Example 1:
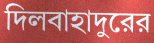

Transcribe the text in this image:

দিলবাহাদুরের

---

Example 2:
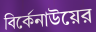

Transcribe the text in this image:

বির্কেনাউয়ের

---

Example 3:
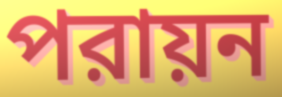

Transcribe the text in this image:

পরায়ন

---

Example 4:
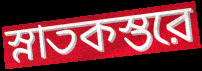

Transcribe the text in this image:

স্নাতকস্তরে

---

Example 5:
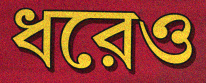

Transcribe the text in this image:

ধরেও